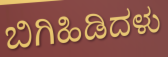
ಬಿಗಿಹಿಡಿದಳು